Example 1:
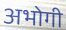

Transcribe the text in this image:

अभोगी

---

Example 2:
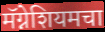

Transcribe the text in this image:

मॅग्नेशियमचा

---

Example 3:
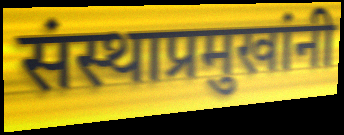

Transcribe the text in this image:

संस्थाप्रमुखांनी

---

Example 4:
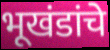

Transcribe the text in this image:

भूखंडांचे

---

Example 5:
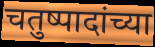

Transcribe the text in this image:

चतुष्पादांच्या